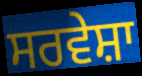
ਸਰਵੇਸ਼ਾ